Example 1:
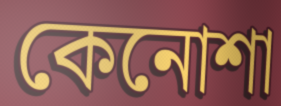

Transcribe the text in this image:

কেনোশা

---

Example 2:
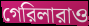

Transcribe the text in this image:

গেরিলারাও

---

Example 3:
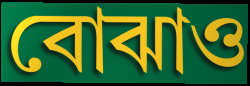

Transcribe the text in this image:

বোঝাও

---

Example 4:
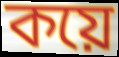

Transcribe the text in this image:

কয়ে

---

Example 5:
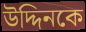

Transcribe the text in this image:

উদ্দিনকে